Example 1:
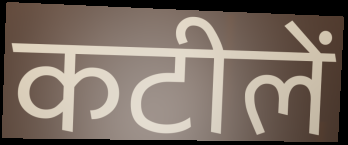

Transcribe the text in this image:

कटीलें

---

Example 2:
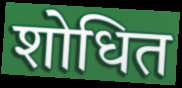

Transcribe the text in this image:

शोधित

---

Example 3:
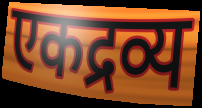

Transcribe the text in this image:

एकद्रव्य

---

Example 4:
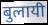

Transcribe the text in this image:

बुलायी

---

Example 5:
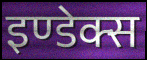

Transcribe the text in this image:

इण्डेक्स